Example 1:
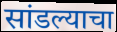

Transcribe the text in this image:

सांडल्याचा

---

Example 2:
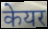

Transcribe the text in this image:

केयर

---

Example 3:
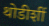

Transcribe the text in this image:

थोडीशीं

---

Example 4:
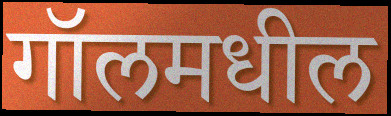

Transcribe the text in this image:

गॉलमधील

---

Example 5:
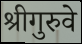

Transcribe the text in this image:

श्रीगुरुवे